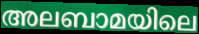
അലബാമയിലെ